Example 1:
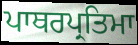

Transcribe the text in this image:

ਪਾਥਰਪ੍ਰਤਿਮਾ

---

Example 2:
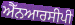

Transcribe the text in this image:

ਐੱਨਆਰਸੀਪੀ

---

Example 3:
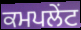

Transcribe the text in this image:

ਕਮਪਲੇਂਟ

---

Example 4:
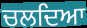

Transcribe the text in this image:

ਚਲਦਿਆ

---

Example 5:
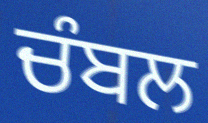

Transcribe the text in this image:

ਚੰਬਲ